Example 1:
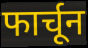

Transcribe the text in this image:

फार्चून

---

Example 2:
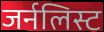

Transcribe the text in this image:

जर्नलिस्ट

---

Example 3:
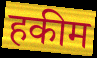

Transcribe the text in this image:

हकीम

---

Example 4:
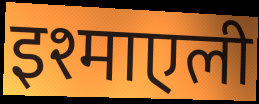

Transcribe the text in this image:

इश्माएली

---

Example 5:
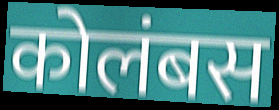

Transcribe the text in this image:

कोलंबस